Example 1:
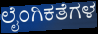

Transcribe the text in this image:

ಲೈಂಗಿಕತೆಗಳ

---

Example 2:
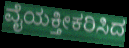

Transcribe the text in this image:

ವೈಯಕ್ತೀಕರಿಸಿದ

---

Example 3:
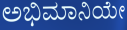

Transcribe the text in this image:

ಅಭಿಮಾನಿಯೇ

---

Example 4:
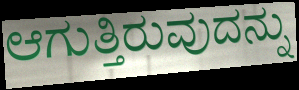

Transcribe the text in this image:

ಆಗುತ್ತಿರುವುದನ್ನು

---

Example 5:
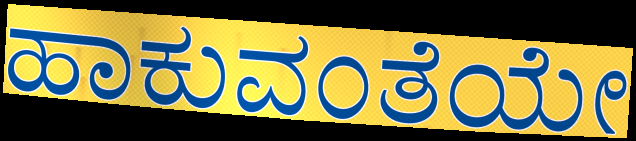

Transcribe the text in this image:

ಹಾಕುವಂತೆಯೇ